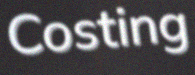
Costing